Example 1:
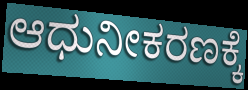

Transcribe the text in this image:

ಆಧುನೀಕರಣಕ್ಕೆ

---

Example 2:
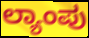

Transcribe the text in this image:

ಲ್ಯಾಂಪು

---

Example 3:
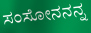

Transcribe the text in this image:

ಸಂಸೋನನನ್ನ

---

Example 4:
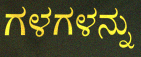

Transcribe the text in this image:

ಗಳಗಳನ್ನು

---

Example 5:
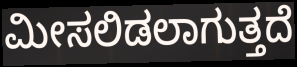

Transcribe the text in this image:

ಮೀಸಲಿಡಲಾಗುತ್ತದೆ